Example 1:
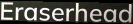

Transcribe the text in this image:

Eraserhead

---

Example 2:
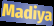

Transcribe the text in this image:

Madiya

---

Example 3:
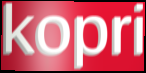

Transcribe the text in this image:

kopri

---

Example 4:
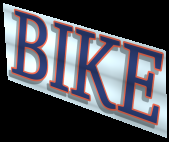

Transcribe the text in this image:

BIKE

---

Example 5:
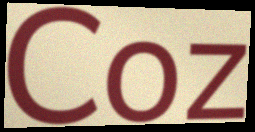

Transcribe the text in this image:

Coz